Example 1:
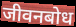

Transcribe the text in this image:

जीवनबोध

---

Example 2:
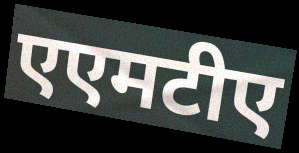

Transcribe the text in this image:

एएमटीए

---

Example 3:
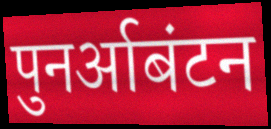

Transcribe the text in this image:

पुनर्आबंटन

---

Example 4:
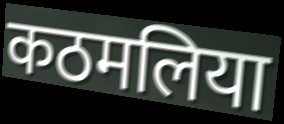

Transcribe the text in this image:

कठमलिया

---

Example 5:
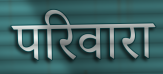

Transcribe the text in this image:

परिवारा